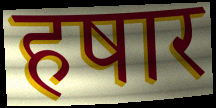
हषार